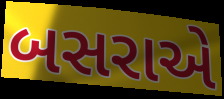
બસરાએ